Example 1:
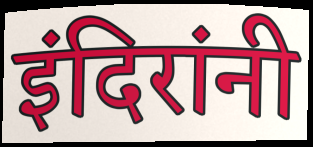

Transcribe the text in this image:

इंदिरांनी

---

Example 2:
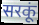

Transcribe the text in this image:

सरकूं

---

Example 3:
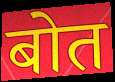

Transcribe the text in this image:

बोत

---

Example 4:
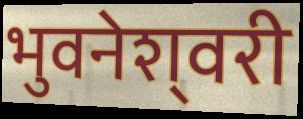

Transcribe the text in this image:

भुवनेश्वरी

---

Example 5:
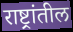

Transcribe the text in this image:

राष्ट्रांतील